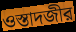
ওস্তাদজীর